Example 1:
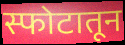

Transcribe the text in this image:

स्फोटातून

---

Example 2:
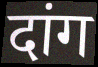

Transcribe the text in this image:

दांग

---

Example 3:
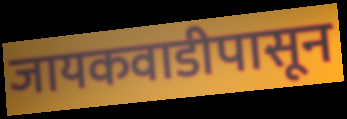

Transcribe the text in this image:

जायकवाडीपासून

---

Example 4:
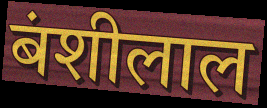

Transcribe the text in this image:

बंशीलाल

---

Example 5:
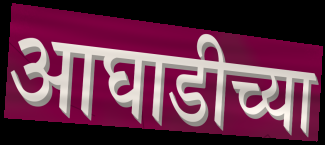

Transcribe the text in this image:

आघाडीच्‍या